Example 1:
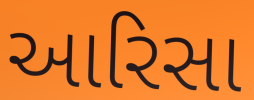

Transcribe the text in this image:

આરિસા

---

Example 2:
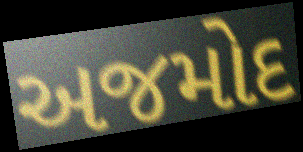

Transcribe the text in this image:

અજમોદ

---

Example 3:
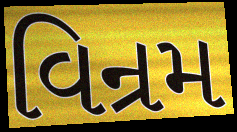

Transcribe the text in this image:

વિન્રમ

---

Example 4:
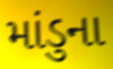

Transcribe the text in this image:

માંડુના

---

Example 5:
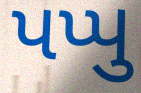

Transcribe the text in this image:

પપ્પુ